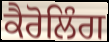
ਕੈਰੋਲਿੰਗ